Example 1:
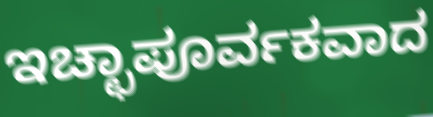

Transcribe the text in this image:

ಇಚ್ಛಾಪೂರ್ವಕವಾದ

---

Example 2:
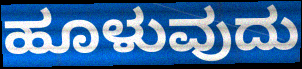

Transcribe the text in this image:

ಹೂಳುವುದು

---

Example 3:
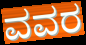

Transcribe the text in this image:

ವವರ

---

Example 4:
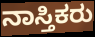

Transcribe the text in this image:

ನಾಸ್ತಿಕರು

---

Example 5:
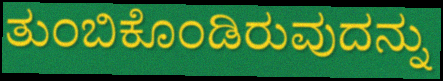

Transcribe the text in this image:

ತುಂಬಿಕೊಂಡಿರುವುದನ್ನು